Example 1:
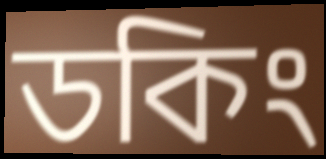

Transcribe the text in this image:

ডকিং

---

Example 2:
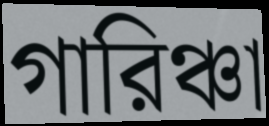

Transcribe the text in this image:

গারিঞ্চা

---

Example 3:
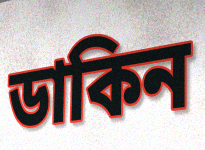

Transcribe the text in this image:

ডাকিন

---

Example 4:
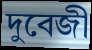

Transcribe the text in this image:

দুবেজী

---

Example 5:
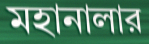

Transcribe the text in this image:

মহানালার